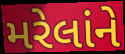
મરેલાંને